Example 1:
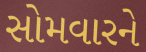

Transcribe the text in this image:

સોમવારને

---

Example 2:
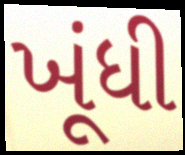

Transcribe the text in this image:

ખૂંધી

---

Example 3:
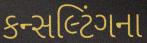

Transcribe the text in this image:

કન્સલ્ટિંગના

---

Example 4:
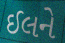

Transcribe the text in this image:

ઈલને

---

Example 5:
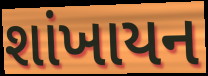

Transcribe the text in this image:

શાંખાયન